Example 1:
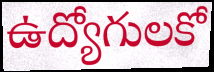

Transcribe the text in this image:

ఉద్యోగులకో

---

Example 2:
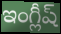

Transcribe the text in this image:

ఇంగ్లీష్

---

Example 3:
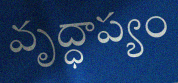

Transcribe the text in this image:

వృద్ధాప్యం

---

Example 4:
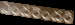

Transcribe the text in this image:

ఎందరెందరి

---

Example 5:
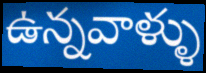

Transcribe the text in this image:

ఉన్నవాళ్ళు